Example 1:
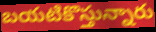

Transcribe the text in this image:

బయటికొస్తున్నారు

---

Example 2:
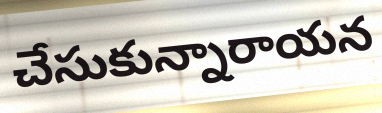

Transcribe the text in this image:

చేసుకున్నారాయన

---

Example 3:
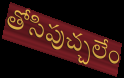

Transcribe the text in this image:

తోసిపుచ్చలేం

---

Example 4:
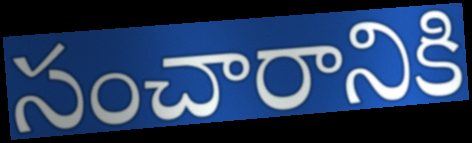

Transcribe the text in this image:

సంచారానికి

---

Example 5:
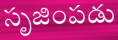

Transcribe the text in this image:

సృజింపడు